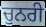
ਚੁਨਰੀ